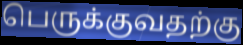
பெருக்குவதற்கு